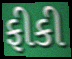
ફીકી